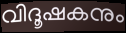
വിദൂഷകനും